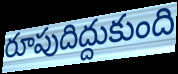
రూపుదిద్దుకుంది